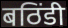
बठिंडी